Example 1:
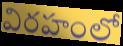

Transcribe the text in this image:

విరహంలో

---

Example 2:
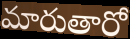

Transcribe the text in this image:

మారుతారో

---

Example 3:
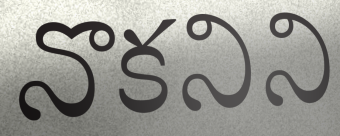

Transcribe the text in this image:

నొకనిని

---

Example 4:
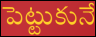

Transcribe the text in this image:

పెట్టుకునే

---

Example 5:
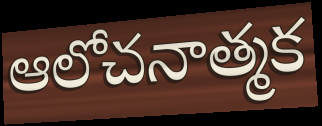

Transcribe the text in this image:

ఆలోచనాత్మక